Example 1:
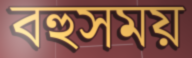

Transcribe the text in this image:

বহুসময়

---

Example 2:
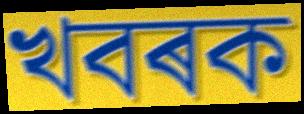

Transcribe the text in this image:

খবৰক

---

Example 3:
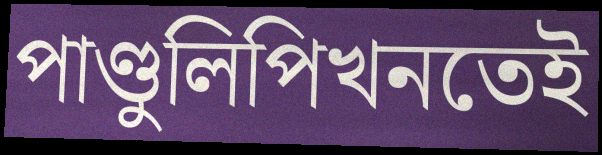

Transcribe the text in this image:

পাণ্ডুলিপিখনতেই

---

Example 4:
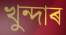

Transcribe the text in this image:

খুন্দাৰ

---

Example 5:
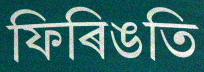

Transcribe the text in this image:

ফিৰিঙতি